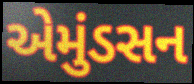
એમુંડસન